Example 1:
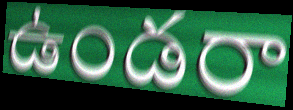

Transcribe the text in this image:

ఉండరా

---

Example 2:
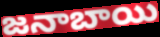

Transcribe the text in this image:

జనాబాయి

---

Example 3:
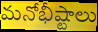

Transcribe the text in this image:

మనోభీష్టాలు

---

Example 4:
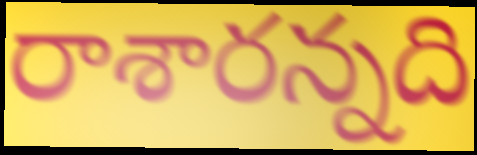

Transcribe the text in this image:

రాశారన్నది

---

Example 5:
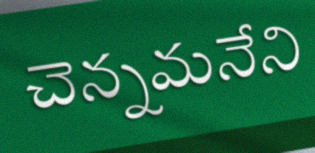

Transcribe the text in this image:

చెన్నమనేని